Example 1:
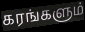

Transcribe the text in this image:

கரங்களும்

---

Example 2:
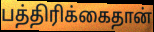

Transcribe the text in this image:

பத்திரிக்கைதான்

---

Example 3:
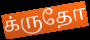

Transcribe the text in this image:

க்ருதோ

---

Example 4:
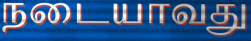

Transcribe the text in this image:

நடையாவது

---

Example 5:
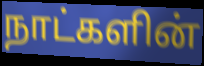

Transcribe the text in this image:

நாட்களின்